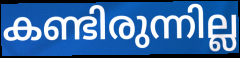
കണ്ടിരുന്നില്ല